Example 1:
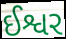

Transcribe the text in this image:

ઈશ્વર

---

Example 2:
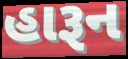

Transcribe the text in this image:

હારૂન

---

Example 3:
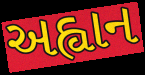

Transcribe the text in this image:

અહ્વાન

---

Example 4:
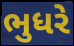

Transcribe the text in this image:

ભુધરે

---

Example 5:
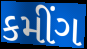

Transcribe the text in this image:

કમીંગ